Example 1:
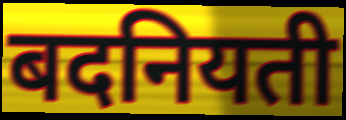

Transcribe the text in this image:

बदनियती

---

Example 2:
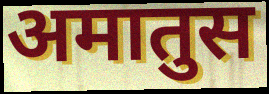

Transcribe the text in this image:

अमातुस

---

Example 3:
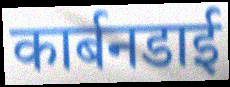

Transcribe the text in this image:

कार्बनडाई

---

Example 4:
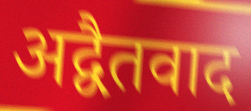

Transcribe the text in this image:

अद्वैतवाद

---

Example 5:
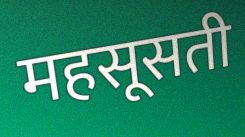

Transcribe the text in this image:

महसूसती